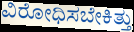
ವಿರೋಧಿಸಬೇಕಿತ್ತು